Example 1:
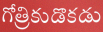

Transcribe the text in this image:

గోత్రికుడొకడు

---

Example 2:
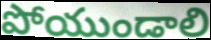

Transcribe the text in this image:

పోయుండాలి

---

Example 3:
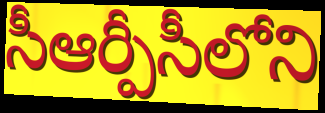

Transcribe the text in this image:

సీఆర్పీసీలోని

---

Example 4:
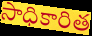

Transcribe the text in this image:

సాధికారిత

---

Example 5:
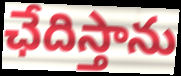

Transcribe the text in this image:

ఛేదిస్తాను